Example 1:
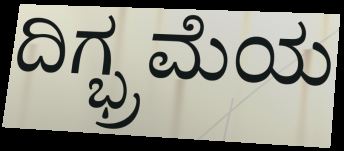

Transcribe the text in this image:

ದಿಗ್ಭ್ರಮೆಯ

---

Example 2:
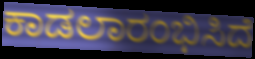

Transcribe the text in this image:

ಕಾಡಲಾರಂಭಿಸಿದೆ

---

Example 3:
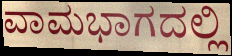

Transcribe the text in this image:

ವಾಮಭಾಗದಲ್ಲಿ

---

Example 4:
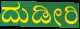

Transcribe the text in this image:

ದುಡೀರಿ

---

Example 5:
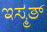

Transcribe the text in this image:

ಇಸ್ಮತ್